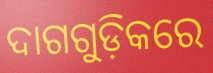
ଦାଗଗୁଡ଼ିକରେ